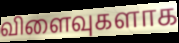
விளைவுகளாக